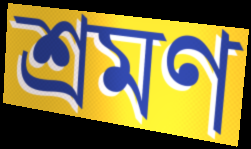
শ্রমণ